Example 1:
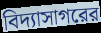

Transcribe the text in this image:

বিদ্যাসাগরের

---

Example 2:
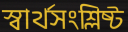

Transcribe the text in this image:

স্বার্থসংশ্লিষ্ট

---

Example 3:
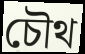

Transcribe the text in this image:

চৌথ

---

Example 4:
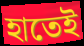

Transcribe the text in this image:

হাতেই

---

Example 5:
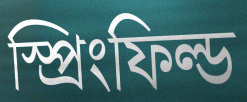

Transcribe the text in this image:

স্প্রিংফিল্ড